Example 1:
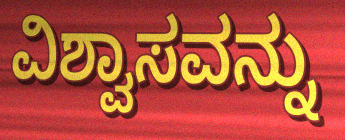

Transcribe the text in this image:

ವಿಶ್ವಾಸವನ್ನು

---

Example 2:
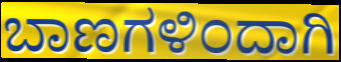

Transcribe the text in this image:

ಬಾಣಗಳಿಂದಾಗಿ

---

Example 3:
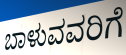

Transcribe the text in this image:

ಬಾಳುವವರಿಗೆ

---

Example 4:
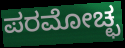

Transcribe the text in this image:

ಪರಮೋಚ್ಛ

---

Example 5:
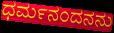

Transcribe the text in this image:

ಧರ್ಮನಂದನನು